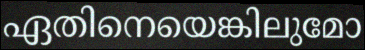
ഏതിനെയെങ്കിലുമോ